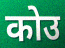
कोउ